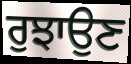
ਰੁਝਾਉਣ